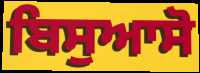
ਬਿਸੁਆਸੋ